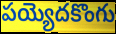
పయ్యెదకొంగు